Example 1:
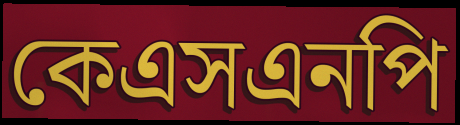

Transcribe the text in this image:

কেএসএনপি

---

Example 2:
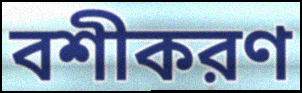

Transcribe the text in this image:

বশীকরণ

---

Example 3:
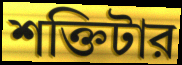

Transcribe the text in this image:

শক্তিটার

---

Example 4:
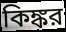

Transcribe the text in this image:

কিঙ্কর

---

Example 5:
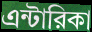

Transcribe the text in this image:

এন্টারিকা